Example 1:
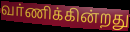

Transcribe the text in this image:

வர்ணிக்கின்றது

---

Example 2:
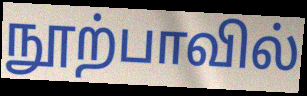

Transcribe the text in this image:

நூற்பாவில்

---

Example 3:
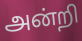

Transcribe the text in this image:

அன்றி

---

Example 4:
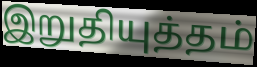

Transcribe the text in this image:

இறுதியுத்தம்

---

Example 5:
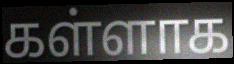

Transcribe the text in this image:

கள்ளாக